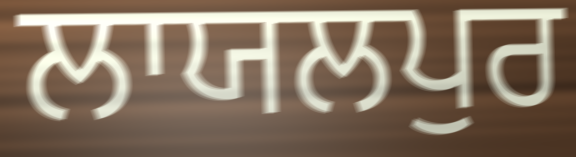
ਲਾਯਲਪੁਰ